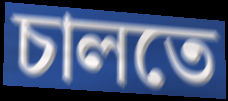
চালতে